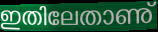
ഇതിലേതാണു്